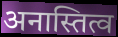
अनास्तित्व